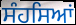
ਸੰਹਸਿਆਂ